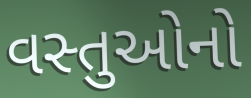
વસ્તુઓનો